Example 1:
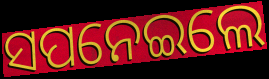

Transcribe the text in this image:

ସପନେଇଲେ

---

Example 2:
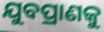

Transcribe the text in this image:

ଯୁବପ୍ରାଣକୁ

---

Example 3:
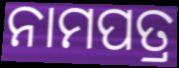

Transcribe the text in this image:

ନାମପତ୍ର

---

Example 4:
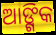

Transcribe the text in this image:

ଆଙ୍ଗିକ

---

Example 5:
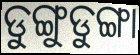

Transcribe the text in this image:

ଡୁଙ୍ଗୁଡୁଙ୍ଗା